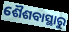
ଶୈଶବାସ୍ଥାରୁ